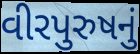
વીરપુરુષનું